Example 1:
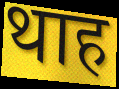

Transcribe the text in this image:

थाह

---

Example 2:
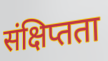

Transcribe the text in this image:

संक्षिप्तता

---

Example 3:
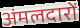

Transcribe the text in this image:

अंमलदारों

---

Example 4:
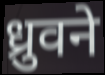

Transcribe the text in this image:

ध्रुवने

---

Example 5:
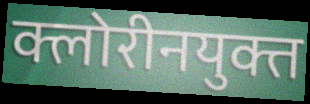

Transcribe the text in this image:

क्लोरीनयुक्त